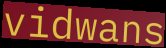
vidwans